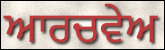
ਆਰਚਵੇਅ